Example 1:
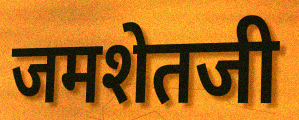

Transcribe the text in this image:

जमशेतजी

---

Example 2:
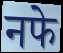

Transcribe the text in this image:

नफे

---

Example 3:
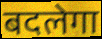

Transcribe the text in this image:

बदलेगा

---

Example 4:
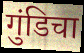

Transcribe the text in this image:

गुंडिचा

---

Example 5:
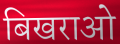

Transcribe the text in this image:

बिखराओ